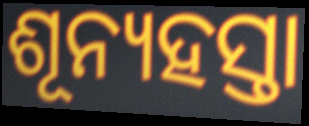
ଶୂନ୍ୟହସ୍ତା